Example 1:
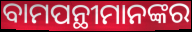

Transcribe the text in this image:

ବାମପନ୍ଥୀମାନଙ୍କର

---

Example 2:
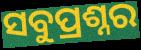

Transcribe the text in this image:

ସବୁପ୍ରଶ୍ନର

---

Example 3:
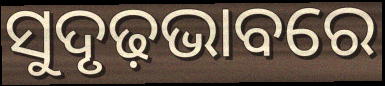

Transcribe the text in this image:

ସୁଦୃଢ଼ଭାବରେ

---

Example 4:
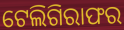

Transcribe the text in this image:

ଟେଲିଗିରାଫର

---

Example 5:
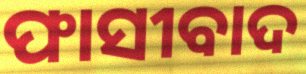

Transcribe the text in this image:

ଫାସୀବାଦ